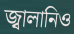
জ্বালানিও